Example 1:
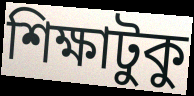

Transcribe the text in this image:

শিক্ষাটুকু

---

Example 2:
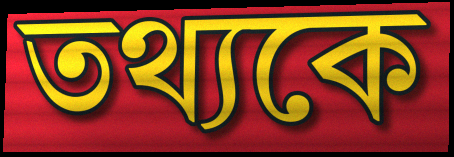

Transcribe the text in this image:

তথ্যকে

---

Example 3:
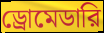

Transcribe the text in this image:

ড্রোমেডারি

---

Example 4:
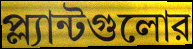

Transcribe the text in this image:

প্ল্যান্টগুলোর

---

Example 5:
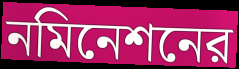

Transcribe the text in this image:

নমিনেশনের